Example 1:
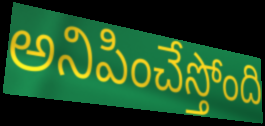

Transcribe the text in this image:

అనిపించేస్తోంది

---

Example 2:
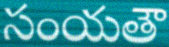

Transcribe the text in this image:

సంయతౌ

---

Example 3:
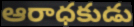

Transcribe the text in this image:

ఆరాధకుడు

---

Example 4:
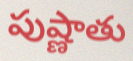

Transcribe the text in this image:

పుష్ణాతు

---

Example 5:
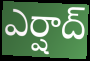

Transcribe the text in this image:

ఎర్షాద్